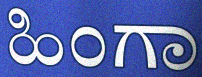
ಹಿಂಗಾ